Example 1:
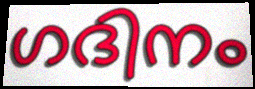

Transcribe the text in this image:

ഗദിനം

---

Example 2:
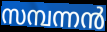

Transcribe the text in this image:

സമ്പന്നൻ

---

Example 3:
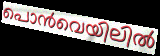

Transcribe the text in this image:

പൊൻവെയിലിൽ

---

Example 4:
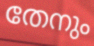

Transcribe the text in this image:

തേനും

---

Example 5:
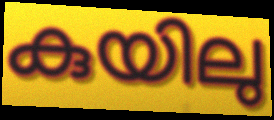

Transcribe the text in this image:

കുയിലു